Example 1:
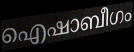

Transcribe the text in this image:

ഐഷാബീഗം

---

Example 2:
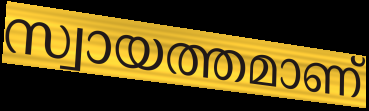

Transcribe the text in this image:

സ്വായത്തമാണ്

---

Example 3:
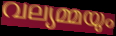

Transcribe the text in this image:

വല്യമ്മയും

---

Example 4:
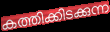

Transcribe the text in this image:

കത്തിക്കിടക്കുന്ന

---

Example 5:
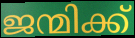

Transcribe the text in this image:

ജന്മിക്ക്